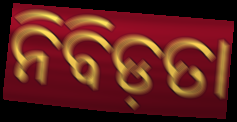
ନିବିଡ଼ତା